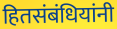
हितसंबंधियांनी